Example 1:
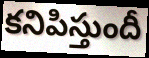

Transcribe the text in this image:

కనిపిస్తుందీ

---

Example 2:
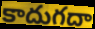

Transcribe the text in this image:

కాదుగదా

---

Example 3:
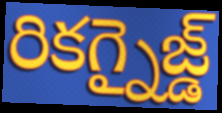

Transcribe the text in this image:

రికగ్నైజ్డ్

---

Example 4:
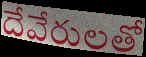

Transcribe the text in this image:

దేవేరులతో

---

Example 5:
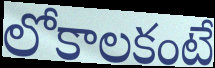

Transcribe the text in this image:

లోకాలకంటే